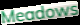
Meadows